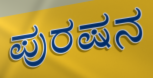
ಪುರಷನ